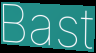
Bast